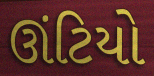
ઊંટિયો